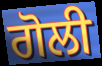
ਗੋਲੀ